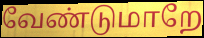
வேண்டுமாறே